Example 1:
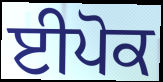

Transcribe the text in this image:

ਈਪੋਕ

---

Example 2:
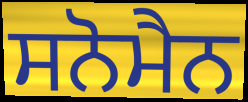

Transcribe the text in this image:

ਸਨੋਮੈਨ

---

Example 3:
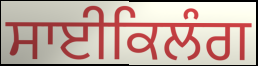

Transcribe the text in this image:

ਸਾਈਕਿਲੰਗ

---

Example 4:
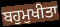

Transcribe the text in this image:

ਬਹੁਮੁਖੀਤਾ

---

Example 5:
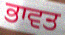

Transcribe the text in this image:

ਭਾਵਤ